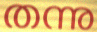
തന്നു